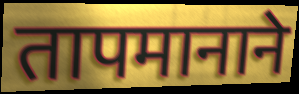
तापमानाने